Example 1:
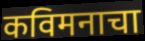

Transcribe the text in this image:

कविमनाचा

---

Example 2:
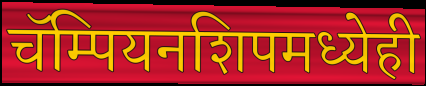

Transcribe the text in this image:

चॅम्पियनशिपमध्येही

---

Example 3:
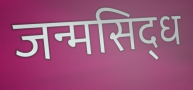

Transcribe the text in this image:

जन्मसिद्ध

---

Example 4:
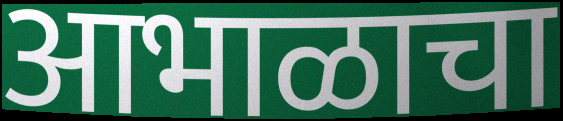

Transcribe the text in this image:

आभाळाचा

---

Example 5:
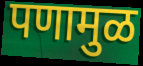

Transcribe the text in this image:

पणामुळ